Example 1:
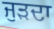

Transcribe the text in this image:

ਜੁੜਦਾ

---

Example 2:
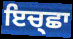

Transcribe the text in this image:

ਇਚ੍ਛਾ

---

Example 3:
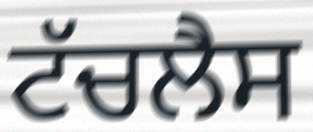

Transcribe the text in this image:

ਟੱਚਲੈਸ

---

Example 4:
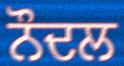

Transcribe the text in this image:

ਨੌਦਲ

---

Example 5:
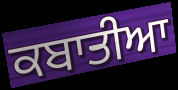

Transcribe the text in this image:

ਕਬਾਤੀਆ